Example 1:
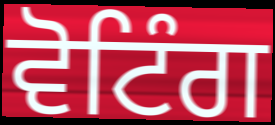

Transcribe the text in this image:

ਵੋਟਿੰਗ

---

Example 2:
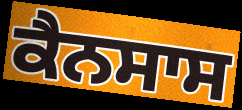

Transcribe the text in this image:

ਕੈਨਸਾਸ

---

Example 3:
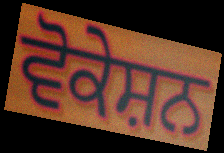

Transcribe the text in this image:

ਵੋਕੇਸ਼ਨ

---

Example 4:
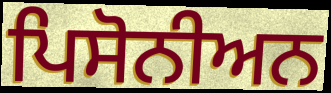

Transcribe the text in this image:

ਪਿਸੋਨੀਅਨ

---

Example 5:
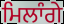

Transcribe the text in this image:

ਮਿਲਾੰਗੇ